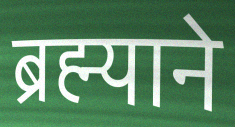
ब्रह्म्याने